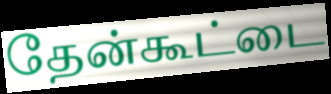
தேன்கூட்டை